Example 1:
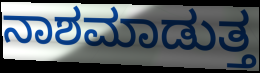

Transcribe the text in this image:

ನಾಶಮಾಡುತ್ತ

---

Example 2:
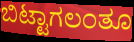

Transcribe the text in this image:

ಬಿಟ್ಟಾಗಲಂತೂ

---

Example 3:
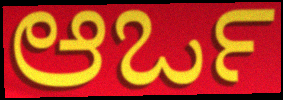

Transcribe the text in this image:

ಆರ್ಒ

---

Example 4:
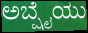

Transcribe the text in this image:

ಅಬ್ಷೈಯು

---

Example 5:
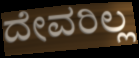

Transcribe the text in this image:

ದೇವರಿಲ್ಲ